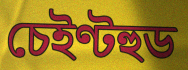
চেইণ্টহুড